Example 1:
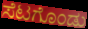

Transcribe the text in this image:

ಸೆಟಗೊಂಡು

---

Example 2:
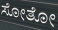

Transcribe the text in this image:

ಸೋತೋ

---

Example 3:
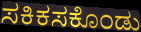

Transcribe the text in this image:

ಸಕಿಕಸಕೊಂಡು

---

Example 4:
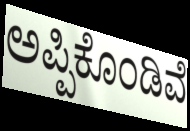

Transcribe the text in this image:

ಅಪ್ಪಿಕೊಂಡಿವೆ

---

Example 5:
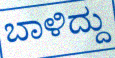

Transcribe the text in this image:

ಬಾಳಿದ್ದು